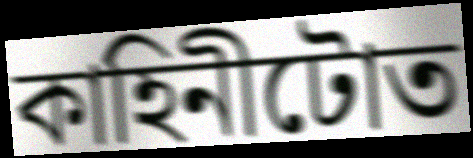
কাহিনীটোত